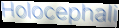
Holocephali